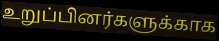
உறுப்பினர்களுக்காக